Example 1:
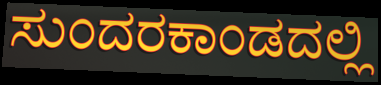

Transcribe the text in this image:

ಸುಂದರಕಾಂಡದಲ್ಲಿ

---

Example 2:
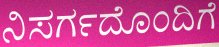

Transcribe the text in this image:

ನಿಸರ್ಗದೊಂದಿಗೆ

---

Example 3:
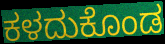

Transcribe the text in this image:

ಕಳದುಕೊಂಡ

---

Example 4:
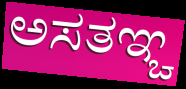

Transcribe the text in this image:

ಅಸತಞ್ಚ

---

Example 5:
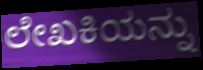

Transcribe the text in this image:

ಲೇಖಕಿಯನ್ನು